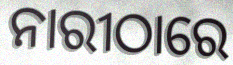
ନାରୀଠାରେ